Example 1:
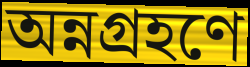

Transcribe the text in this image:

অন্নগ্রহণে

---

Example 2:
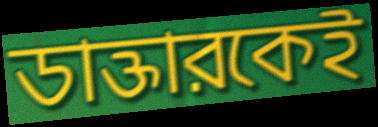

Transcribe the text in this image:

ডাক্তারকেই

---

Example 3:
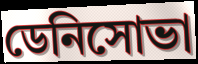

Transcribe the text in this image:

ডেনিসোভা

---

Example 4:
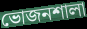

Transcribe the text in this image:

ভোজনশালা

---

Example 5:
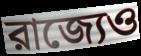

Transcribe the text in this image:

রাজ্যেও